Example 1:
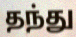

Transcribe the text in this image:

தந்து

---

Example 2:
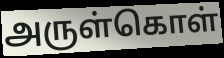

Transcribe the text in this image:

அருள்கொள்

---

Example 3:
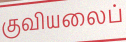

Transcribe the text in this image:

குவியலைப்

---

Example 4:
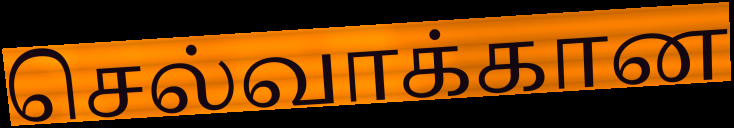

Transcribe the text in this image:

செல்வாக்கான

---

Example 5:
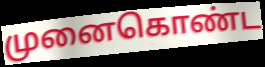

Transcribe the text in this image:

முனைகொண்ட